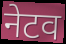
नेटव